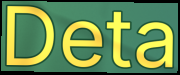
Deta